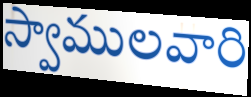
స్వాములవారి